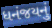
ધનંજયનું